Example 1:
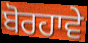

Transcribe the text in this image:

ਬੋਰਹਾਵੇ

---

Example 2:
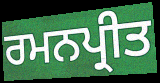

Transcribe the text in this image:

ਰਮਨਪ੍ਰੀਤ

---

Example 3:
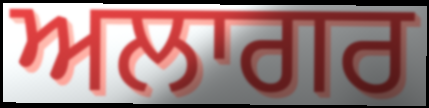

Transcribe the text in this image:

ਅਲਾਗਰ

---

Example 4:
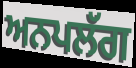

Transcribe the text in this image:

ਅਨਪਲੱਗ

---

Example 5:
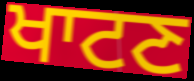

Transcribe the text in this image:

ਖਾਟਣ